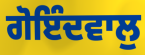
ਗੋਇੰਦਵਾਲੁ